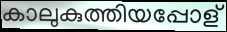
കാലുകുത്തിയപ്പോള്